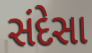
સંદેસા